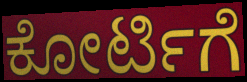
ಕೋರ್ಟಿಗೆ